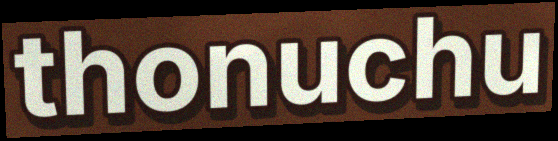
thonuchu